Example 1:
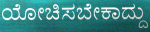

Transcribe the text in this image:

ಯೋಚಿಸಬೇಕಾದ್ದು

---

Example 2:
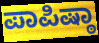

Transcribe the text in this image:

ಪಾಪಿಷ್ಠಾ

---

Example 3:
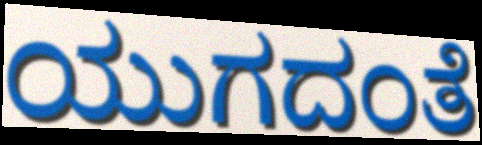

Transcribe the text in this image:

ಯುಗದಂತೆ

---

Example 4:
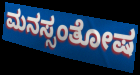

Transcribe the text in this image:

ಮನಸ್ಸಂತೋಷ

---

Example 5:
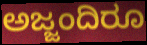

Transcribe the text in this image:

ಅಜ್ಜಂದಿರೂ